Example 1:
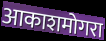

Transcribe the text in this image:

आकाशमोगरा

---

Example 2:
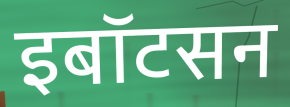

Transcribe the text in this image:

इबॉटसन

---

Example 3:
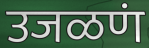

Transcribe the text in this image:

उजळणं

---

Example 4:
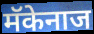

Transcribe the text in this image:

मॅकेनाज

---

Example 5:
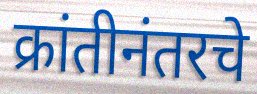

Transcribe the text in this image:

क्रांतीनंतरचे